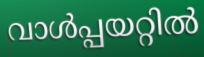
വാൾപ്പയറ്റിൽ